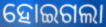
ହୋଇଗଲା